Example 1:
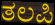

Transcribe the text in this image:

ತಲಪಿ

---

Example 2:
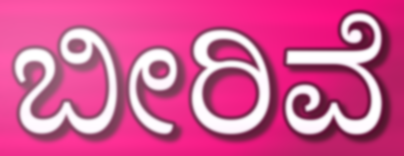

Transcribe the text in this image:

ಬೀರಿವೆ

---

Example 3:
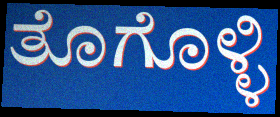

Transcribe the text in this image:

ತೊಗೊಳ್ಳಿ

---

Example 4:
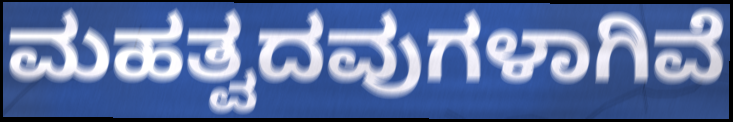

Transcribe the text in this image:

ಮಹತ್ವದವುಗಳಾಗಿವೆ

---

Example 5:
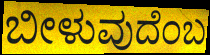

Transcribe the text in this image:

ಬೀಳುವುದೆಂಬ